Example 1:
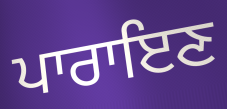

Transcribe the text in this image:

ਪਾਰਾਇਣ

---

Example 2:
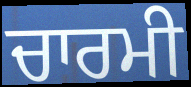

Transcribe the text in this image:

ਚਾਰਮੀ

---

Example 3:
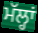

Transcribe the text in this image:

ਮੱਲ੍ਹਾਂ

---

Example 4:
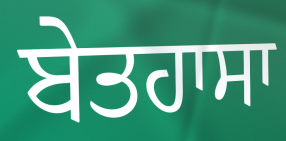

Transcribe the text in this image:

ਬੇਤਹਾਸਾ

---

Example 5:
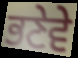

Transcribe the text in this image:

ਭਣੇਵੇ